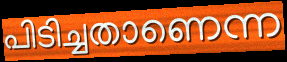
പിടിച്ചതാണെന്ന